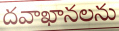
దవాఖానలను